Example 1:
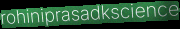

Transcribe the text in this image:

rohiniprasadkscience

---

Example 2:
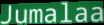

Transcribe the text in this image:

Jumalaa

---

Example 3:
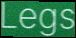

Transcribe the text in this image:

Legs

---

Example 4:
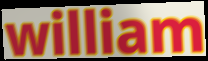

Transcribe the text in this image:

william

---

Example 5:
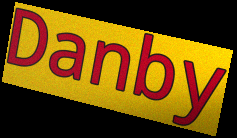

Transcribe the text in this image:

Danby